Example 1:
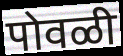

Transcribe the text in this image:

पोवळी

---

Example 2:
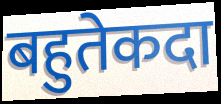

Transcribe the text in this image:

बहुतेकदा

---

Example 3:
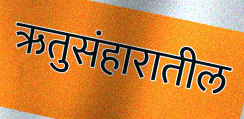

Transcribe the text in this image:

ऋतुसंहारातील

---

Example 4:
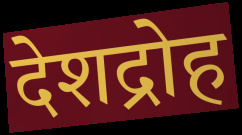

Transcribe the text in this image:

देशद्रोह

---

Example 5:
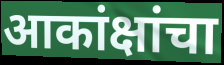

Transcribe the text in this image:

आकांक्षांचा